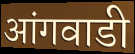
आंगवाडी